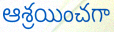
ఆశ్రయించగా